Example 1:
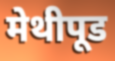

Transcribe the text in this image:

मेथीपूड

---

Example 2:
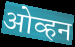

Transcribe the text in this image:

ओव्हन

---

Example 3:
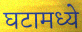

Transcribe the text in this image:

घटामध्ये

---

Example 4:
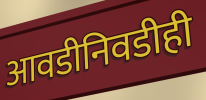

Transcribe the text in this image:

आवडीनिवडीही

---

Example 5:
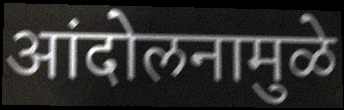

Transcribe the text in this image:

आंदोलनामुळे